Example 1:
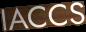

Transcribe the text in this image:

IACCS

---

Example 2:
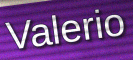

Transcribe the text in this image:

Valerio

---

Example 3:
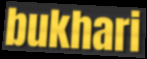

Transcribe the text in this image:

bukhari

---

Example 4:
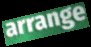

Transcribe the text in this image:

arrange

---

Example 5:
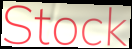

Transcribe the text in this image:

Stock